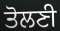
ਤੋਲਣੀ